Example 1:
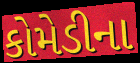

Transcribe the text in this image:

કોમેડીના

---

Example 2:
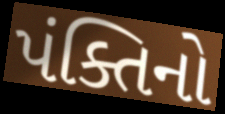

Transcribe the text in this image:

પંક્તિનો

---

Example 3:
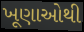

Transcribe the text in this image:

ખૂણાઓથી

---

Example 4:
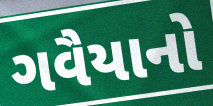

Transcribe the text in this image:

ગવૈયાનો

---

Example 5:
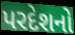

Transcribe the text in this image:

પરદેશનો